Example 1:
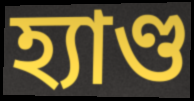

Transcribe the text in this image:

হ্যাণ্ড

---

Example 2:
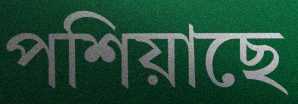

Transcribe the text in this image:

পশিয়াছে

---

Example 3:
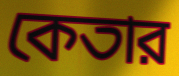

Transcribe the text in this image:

কেতার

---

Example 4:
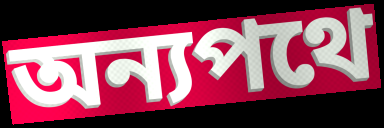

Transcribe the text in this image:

অন্যপথে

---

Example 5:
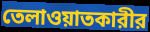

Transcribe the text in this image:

তেলাওয়াতকারীর